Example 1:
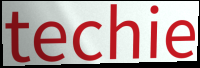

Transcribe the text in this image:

techie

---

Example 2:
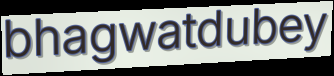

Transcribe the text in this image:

bhagwatdubey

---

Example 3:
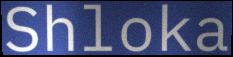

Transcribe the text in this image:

Shloka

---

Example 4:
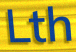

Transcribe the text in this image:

Lth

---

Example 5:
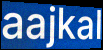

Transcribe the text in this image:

aajkal